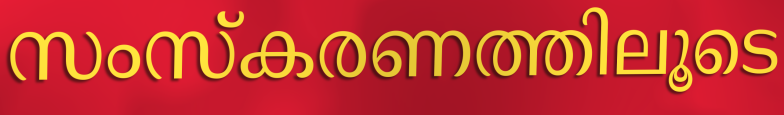
സംസ്കരണത്തിലൂടെ